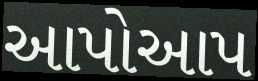
આપોઆપ